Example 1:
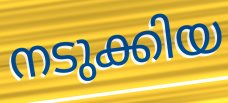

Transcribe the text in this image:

നടുക്കിയ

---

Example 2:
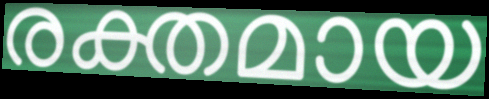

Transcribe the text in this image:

രക്തമായ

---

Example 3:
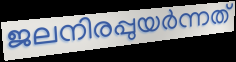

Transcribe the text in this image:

ജലനിരപ്പുയർന്നത്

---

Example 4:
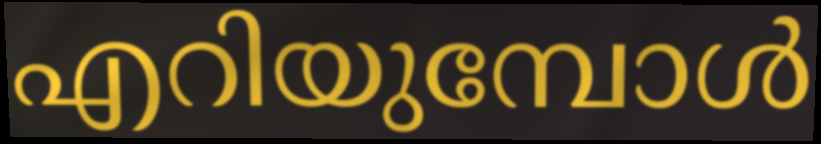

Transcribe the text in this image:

എറിയുമ്പോൾ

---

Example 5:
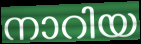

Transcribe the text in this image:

നാറിയ